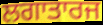
ਲਗਾਤਾਰਜ